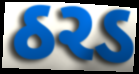
ઠરડ